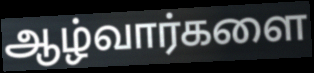
ஆழ்வார்களை